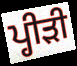
ਪ੍ਹੀੜੀ